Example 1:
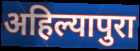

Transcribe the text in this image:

अहिल्यापुरा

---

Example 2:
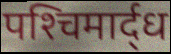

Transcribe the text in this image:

पश्चिमार्द्ध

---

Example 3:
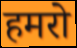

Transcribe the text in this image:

हमरो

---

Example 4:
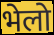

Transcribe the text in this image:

भेलो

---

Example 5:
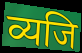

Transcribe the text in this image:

व्यजि